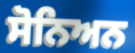
ਸੋਨਿਅਨ